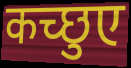
कच्छुए